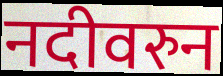
नदीवरुन